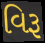
વિરૂ